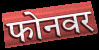
फोनवर